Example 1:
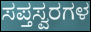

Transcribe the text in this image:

ಸಪ್ತಸ್ವರಗಳ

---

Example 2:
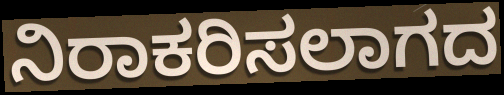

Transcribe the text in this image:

ನಿರಾಕರಿಸಲಾಗದ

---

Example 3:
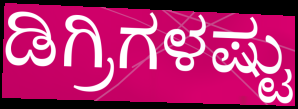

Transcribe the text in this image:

ಡಿಗ್ರಿಗಳಷ್ಟು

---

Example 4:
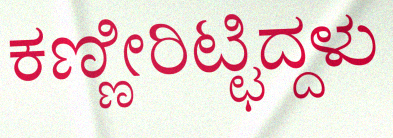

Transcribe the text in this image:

ಕಣ್ಣೀರಿಟ್ಟಿದ್ದಳು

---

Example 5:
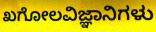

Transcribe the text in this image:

ಖಗೋಲವಿಜ್ಞಾನಿಗಳು